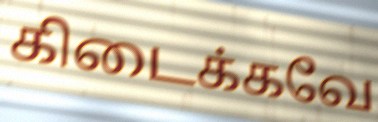
கிடைக்கவே